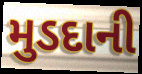
મુડદાની